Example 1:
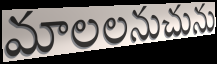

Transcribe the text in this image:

మాలలనుచును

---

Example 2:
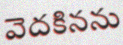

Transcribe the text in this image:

వెదకినను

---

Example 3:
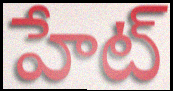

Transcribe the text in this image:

హేట్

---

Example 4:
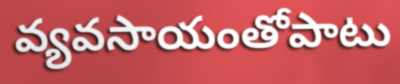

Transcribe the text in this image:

వ్యవసాయంతోపాటు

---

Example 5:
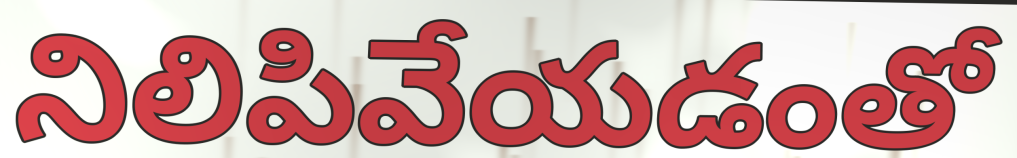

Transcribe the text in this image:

నిలిపివేయడంతో